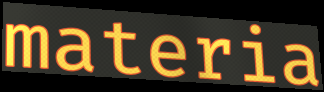
materia